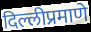
दिल्लीप्रमाणे